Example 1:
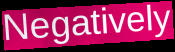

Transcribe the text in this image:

Negatively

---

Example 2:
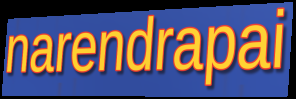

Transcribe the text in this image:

narendrapai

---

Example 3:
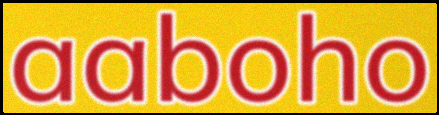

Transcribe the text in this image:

aaboho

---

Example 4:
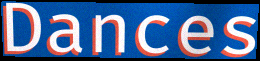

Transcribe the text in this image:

Dances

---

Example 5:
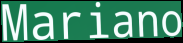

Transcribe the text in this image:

Mariano